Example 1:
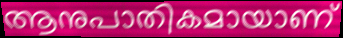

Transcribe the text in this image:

ആനുപാതികമായാണ്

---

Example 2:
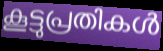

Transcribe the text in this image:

കൂട്ടുപ്രതികൾ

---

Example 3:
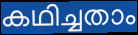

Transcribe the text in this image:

കഥിച്ചതാം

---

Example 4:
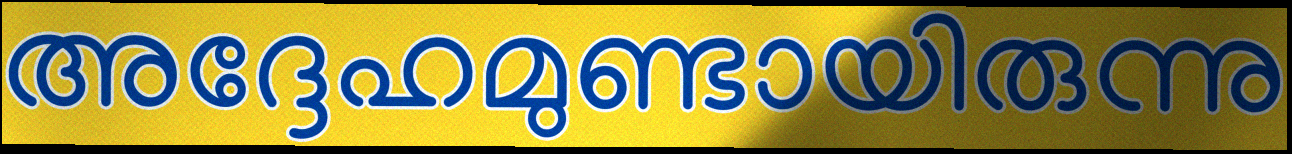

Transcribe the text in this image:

അദ്ദേഹമുണ്ടായിരുന്നു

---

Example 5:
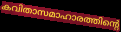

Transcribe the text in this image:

കവിതാസമാഹാരത്തിന്റെ